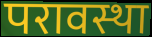
परावस्था